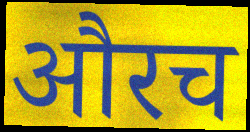
औरच